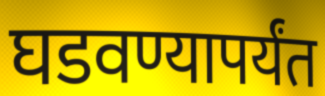
घडवण्यापर्यंत